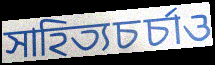
সাহিত্যচর্চাও